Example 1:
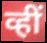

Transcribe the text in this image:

व्हीं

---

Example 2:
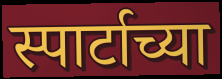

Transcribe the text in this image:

स्पार्टाच्या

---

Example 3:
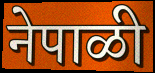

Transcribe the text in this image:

नेपाळी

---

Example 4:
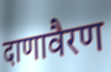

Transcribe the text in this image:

दाणावैरण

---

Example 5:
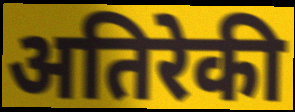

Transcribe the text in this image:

अतिरेकी